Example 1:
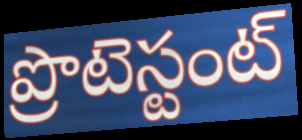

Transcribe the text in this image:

ప్రొటెస్టంట్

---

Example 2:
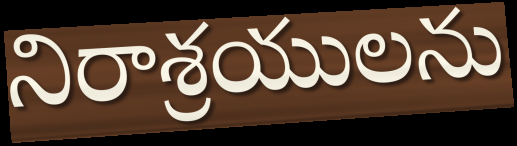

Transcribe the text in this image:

నిరాశ్రయులను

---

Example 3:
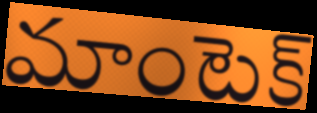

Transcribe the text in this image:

మాంటెక్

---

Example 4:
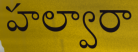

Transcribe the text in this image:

హల్వారా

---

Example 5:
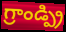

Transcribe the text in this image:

గ్రాండ్ప్రి